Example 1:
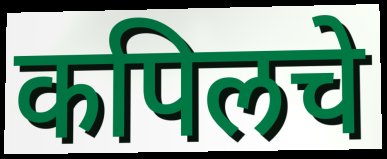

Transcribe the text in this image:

कपिलचे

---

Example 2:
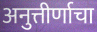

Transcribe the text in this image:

अनुत्तीर्णाचा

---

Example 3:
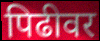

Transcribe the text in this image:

पिढीवर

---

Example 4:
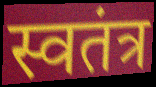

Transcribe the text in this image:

स्वतंत्र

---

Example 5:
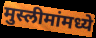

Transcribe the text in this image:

मुस्लीमांमध्ये